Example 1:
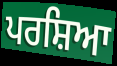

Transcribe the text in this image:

ਪਰਸ਼ਿਆ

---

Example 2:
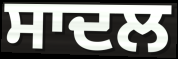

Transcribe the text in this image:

ਸਾਦਲ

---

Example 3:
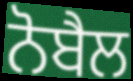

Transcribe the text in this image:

ਨੋਬੈਲ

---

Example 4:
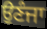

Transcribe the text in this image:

ਉਣੰਜਾ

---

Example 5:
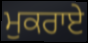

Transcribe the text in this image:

ਮੁਕਰਾਏ